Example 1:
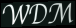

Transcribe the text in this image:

WDM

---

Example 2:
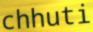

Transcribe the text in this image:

chhuti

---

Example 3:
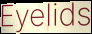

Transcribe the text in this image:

Eyelids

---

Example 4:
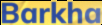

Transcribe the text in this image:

Barkha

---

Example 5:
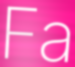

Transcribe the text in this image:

Fa